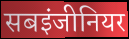
सबइंजीनियर